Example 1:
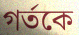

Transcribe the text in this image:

গর্তকে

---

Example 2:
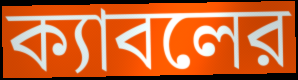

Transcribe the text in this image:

ক্যাবলের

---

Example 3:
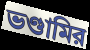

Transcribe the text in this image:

ভণ্ডামির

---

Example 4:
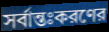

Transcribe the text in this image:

সর্বান্তঃকরণের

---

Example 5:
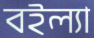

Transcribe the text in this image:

বইল্যা